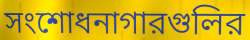
সংশোধনাগারগুলির